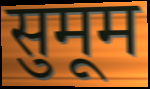
सुमूम